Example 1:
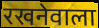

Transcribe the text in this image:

रखनेवाला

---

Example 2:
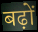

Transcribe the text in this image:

बढ़ों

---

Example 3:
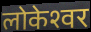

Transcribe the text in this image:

लोकेश्वर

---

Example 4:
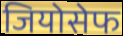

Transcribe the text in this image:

जियोसेफ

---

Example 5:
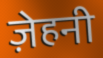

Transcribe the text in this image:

ज़ेहनी